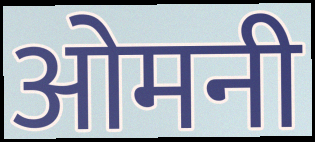
ओमनी